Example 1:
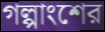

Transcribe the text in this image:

গল্পাংশের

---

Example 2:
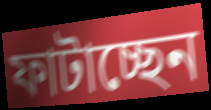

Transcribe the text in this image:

ফাটাচ্ছেন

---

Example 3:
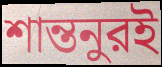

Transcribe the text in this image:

শান্তনুরই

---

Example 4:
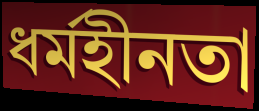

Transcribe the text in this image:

ধর্মহীনতা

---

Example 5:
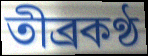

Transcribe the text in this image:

তীব্রকণ্ঠ